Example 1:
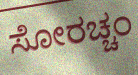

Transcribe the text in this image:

ಸೋರಚ್ಚಂ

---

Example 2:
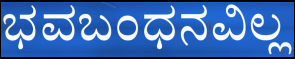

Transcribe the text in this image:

ಭವಬಂಧನವಿಲ್ಲ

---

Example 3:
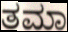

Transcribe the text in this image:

ತಮಾ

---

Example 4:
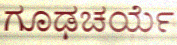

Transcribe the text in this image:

ಗೂಢಚರ್ಯೆ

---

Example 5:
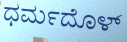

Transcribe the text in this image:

ಧರ್ಮದೊಳ್